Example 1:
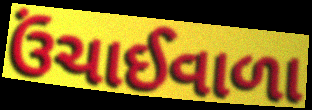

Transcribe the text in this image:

ઉંચાઈવાળા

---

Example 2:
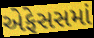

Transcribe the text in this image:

એફેસસમાં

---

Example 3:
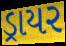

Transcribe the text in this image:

ડ્રાયર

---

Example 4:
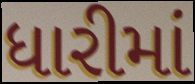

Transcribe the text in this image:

ધારીમાં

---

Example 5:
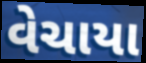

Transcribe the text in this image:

વેચાયા